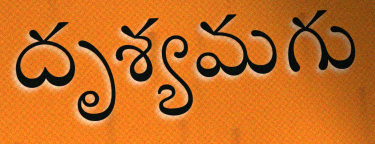
దృశ్యమగు